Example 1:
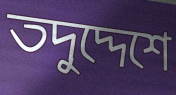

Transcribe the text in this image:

তদুদ্দেশে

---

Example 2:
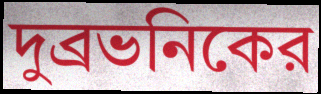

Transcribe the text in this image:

দুব্রভনিকের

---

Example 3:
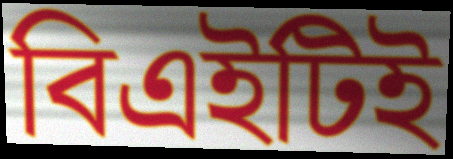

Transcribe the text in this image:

বিএইটিই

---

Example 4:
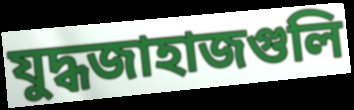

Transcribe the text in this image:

যুদ্ধজাহাজগুলি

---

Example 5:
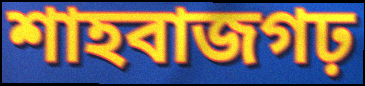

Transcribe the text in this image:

শাহবাজগঢ়